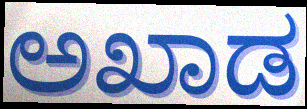
ಅಖಾಡ